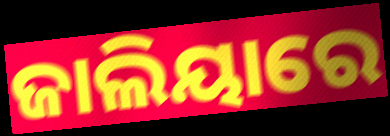
ଜାଲିୟାରେ